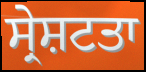
ਸ੍ਰੇਸ਼ਟਤਾ